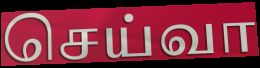
செய்வா